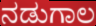
ನಡುಗಾಲ